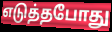
எடுத்தபோது